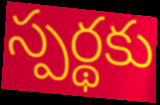
స్పర్థకు